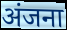
अंजना